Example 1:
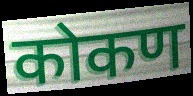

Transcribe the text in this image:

कोकण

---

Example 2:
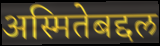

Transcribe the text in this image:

अस्मितेबद्दल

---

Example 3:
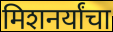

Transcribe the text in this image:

मिशनर्यांचा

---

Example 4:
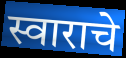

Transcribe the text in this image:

स्वाराचे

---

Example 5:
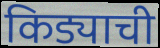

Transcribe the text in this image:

किड्याची